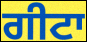
ਗੀਟਾ